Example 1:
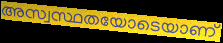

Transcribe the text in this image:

അസ്വസ്ഥതയോടെയാണ്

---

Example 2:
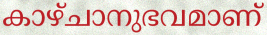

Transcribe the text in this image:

കാഴ്ചാനുഭവമാണ്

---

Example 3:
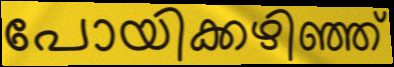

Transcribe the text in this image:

പോയിക്കഴിഞ്ഞ്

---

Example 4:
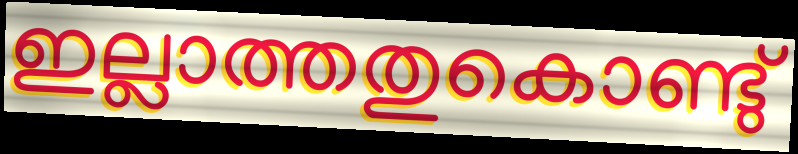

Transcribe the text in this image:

ഇല്ലാത്തതുകൊണ്ടു്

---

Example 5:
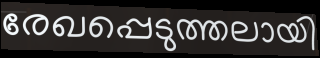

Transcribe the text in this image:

രേഖപ്പെടുത്തലായി